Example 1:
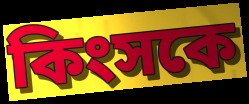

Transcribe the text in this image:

কিংসকে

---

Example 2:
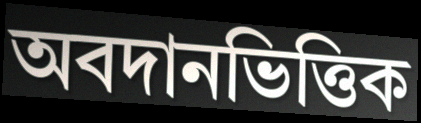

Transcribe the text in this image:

অবদানভিত্তিক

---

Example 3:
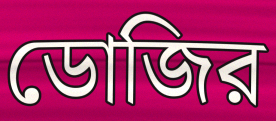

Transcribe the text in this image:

ডোজির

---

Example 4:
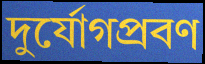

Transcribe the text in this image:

দুর্যোগপ্রবণ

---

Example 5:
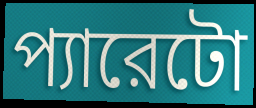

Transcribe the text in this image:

প্যারেটো